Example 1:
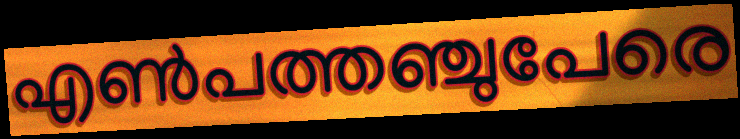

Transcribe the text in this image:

എൺപത്തഞ്ചുപേരെ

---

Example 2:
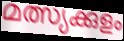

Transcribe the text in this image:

മത്സ്യക്കുളം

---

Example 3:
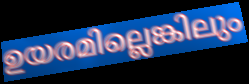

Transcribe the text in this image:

ഉയരമില്ലെങ്കിലും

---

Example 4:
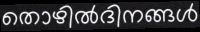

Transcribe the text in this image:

തൊഴിൽദിനങ്ങൾ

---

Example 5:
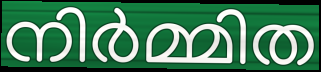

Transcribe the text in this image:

നിർമ്മിത